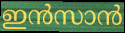
ഇൻസാൻ